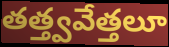
తత్త్వవేత్తలూ